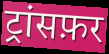
ट्रांसफ़र